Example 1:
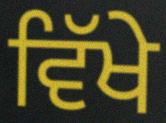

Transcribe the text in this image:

ਵਿੱਖੇ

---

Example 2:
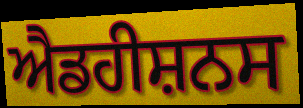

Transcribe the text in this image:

ਐਡਹੀਸ਼ਨਸ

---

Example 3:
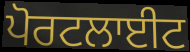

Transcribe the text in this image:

ਪੋਰਟਲਾਈਟ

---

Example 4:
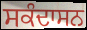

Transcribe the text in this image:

ਸਕੰਦਾਸਨ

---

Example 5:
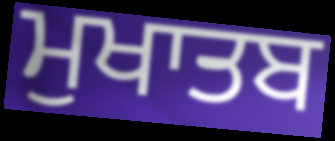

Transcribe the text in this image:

ਮੁਖਾਤਬ